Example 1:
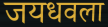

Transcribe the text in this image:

जयधवला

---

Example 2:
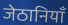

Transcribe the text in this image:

जेठानियाँ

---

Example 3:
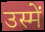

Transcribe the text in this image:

उस्में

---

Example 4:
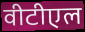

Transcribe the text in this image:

वीटीएल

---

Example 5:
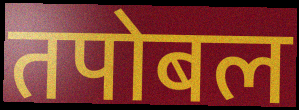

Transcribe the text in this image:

तपोबल